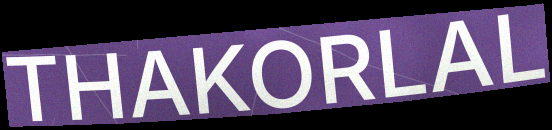
THAKORLAL